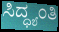
ಸಿದ್ಧ್ಯಂತಿ